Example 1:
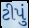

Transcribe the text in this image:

ટીપું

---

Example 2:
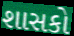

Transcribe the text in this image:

શાસકો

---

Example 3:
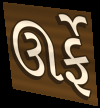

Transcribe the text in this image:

ઊર્ફે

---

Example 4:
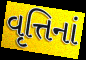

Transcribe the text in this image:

વૃત્તિનાં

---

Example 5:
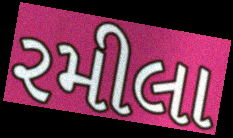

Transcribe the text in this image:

રમીલા